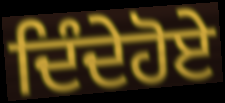
ਦਿੰਦੇਹੋਏ